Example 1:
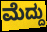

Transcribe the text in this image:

ಮೆದ್ದು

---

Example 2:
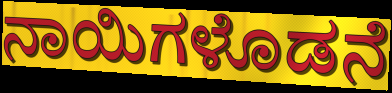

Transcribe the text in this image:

ನಾಯಿಗಳೊಡನೆ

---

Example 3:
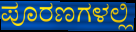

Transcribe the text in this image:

ಪೂರಣಗಳಲ್ಲಿ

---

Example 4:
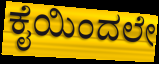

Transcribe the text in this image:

ಕೈಯಿಂದಲೇ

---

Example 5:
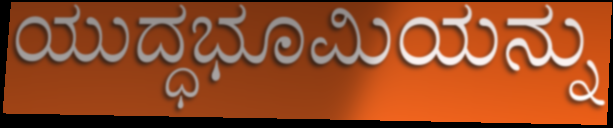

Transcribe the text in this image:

ಯುದ್ಧಭೂಮಿಯನ್ನು